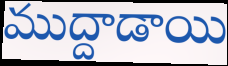
ముద్దాడాయి